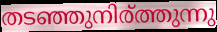
തടഞ്ഞുനിര്ത്തുന്നു